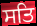
ਸਤਿ